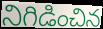
నిగిడించిన